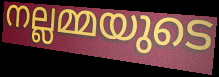
നല്ലമ്മയുടെ